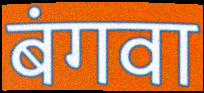
बंगवा